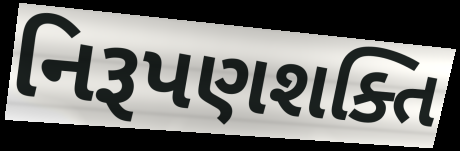
નિરૂપણશક્તિ